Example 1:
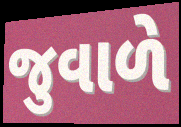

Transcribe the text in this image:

જુવાળે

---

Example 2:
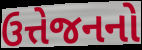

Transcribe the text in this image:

ઉત્તેજનનો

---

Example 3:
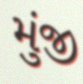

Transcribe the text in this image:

મુંજી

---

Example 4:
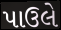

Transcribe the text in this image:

પાઉલે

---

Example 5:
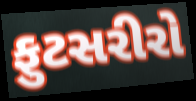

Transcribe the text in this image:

ફુટસરીરો